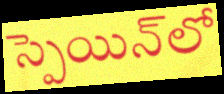
స్పెయిన్‌లో